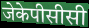
जेकेपीसीसी